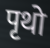
पृथो